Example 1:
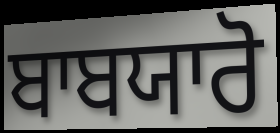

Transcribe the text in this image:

ਬਾਬਯਾਰੋ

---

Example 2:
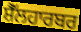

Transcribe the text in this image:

ਸ਼ੈੱਲਹਾਰਬਰ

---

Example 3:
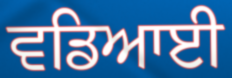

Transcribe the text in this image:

ਵਡਿਆਈ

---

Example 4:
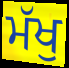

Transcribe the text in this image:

ਮੱਖੁ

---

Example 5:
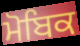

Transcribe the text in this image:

ਮੋਬਿਕ